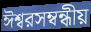
ঈশ্বরসম্বন্ধীয়